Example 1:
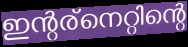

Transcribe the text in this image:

ഇന്റര്നെറ്റിന്റെ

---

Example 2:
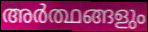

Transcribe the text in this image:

അർത്ഥങ്ങളും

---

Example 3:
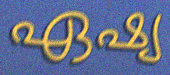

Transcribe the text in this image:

ഏഷ്യ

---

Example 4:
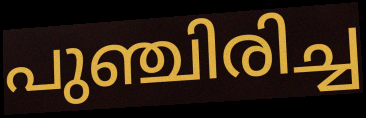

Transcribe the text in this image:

പുഞ്ചിരിച്ച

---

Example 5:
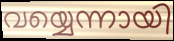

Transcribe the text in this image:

വയ്യെന്നായി